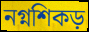
নগ্নশিকড়